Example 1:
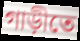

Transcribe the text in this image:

গাড়ীতে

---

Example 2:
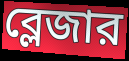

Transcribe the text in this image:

ব্লেজার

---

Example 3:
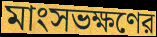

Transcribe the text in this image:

মাংসভক্ষণের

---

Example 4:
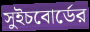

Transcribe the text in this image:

সুইচবোর্ডের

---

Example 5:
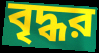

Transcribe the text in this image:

বৃদ্ধর